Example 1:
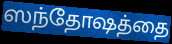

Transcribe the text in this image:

ஸந்தோஷத்தை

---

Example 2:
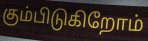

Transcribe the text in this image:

கும்பிடுகிறோம்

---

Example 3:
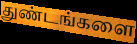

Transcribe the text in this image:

துண்டங்களை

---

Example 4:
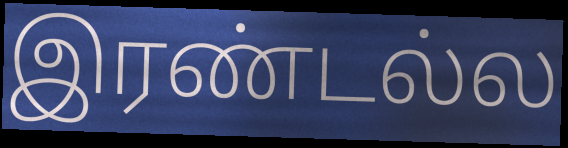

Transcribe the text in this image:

இரண்டல்ல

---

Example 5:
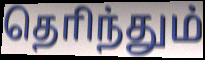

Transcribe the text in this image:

தெரிந்தும்